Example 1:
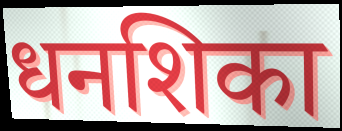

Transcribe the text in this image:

धनशिका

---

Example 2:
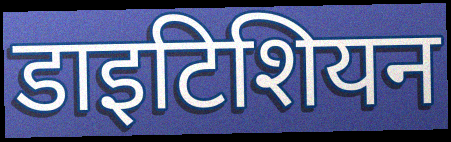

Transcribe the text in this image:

डाइटिशियन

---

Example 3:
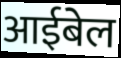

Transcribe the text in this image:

आईबेल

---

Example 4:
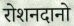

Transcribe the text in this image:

रोशनदानो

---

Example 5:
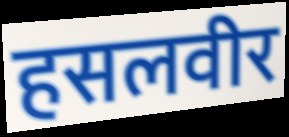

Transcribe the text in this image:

हसलवीर